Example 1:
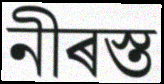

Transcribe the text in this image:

নীৰস্ত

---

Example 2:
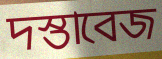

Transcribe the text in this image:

দস্তাবেজ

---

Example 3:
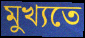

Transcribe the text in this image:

মুখ্যতে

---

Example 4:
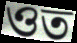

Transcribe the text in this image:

ওত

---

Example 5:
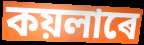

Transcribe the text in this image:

কয়লাৰে